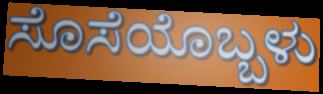
ಸೊಸೆಯೊಬ್ಬಳು